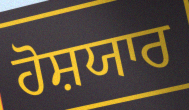
ਹੋਸ਼ਯਾਰ